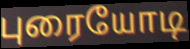
புரையோடி